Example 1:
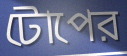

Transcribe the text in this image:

টোপের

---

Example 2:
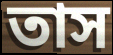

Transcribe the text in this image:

তাস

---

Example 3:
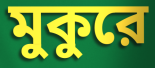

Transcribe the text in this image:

মুকুরে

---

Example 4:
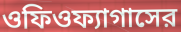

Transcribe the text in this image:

ওফিওফ্যাগাসের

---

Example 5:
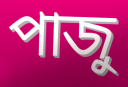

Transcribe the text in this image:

পাজু